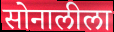
सोनालीला